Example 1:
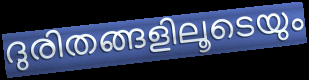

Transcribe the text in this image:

ദുരിതങ്ങളിലൂടെയും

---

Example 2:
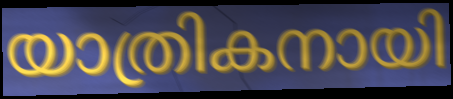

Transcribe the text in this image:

യാത്രികനായി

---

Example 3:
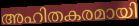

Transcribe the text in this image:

അഹിതകരമായി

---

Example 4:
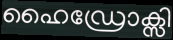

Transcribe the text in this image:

ഹൈഡ്രോക്സി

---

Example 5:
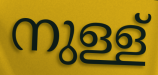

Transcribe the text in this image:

നുള്ള്